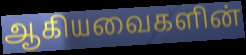
ஆகியவைகளின்